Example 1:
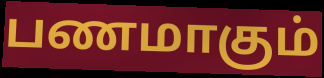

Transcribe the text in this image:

பணமாகும்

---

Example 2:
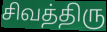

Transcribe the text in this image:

சிவத்திரு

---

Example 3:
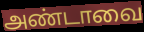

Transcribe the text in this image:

அண்டாவை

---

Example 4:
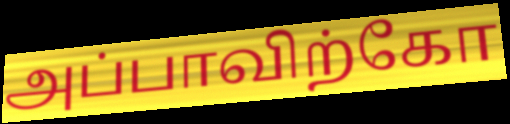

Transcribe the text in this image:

அப்பாவிற்கோ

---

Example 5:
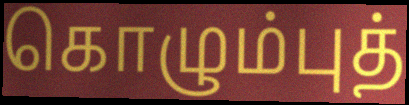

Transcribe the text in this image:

கொழும்புத்